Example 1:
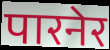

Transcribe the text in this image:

पारनेर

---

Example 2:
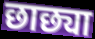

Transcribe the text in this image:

छाछ्या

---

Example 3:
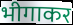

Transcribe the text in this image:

भीगाकर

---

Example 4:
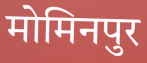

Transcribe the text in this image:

मोमिनपुर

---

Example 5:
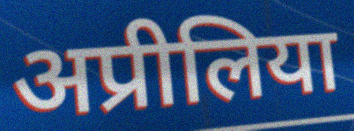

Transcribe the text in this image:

अप्रीलिया